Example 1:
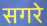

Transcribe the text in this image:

सगरे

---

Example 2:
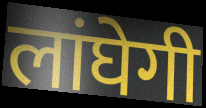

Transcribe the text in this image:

लांघेगी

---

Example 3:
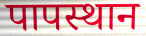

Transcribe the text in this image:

पापस्थान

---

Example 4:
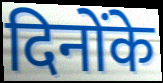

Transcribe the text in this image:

दिनोंके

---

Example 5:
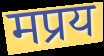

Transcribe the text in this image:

मप्रय